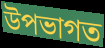
উপভাগত